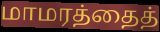
மாமரத்தைத்